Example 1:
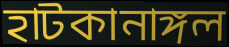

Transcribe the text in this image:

হাটকানাঙ্গল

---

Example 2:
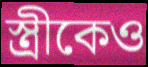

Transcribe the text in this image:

স্ত্রীকেও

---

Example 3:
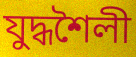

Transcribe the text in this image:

যুদ্ধশৈলী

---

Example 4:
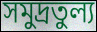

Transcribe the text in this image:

সমুদ্রতুল্য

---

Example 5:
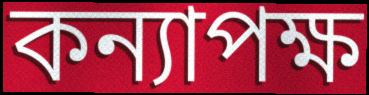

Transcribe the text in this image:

কন্যাপক্ষ